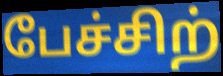
பேச்சிற்